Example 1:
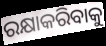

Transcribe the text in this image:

ରକ୍ଷାକରିବାକୁ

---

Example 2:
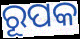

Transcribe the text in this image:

ରୂପକ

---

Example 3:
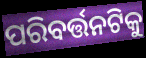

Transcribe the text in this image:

ପରିବର୍ତ୍ତନଟିକୁ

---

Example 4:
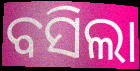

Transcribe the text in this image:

ବସିଲା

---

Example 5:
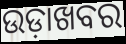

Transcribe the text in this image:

ଉଡ଼ାଖବର